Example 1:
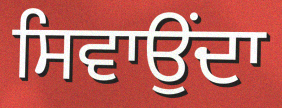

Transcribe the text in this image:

ਸਿਵਾਉਂਦਾ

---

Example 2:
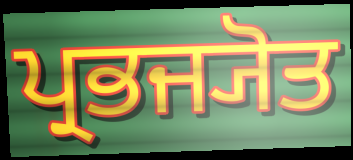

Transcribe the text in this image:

ਪ੍ਰਭਜ੍ਯੋਤ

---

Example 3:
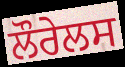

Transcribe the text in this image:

ਲੌਰੇਲਸ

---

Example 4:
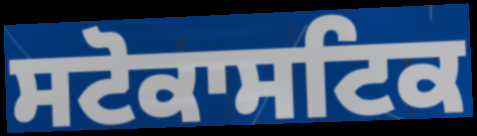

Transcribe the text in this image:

ਸਟੋਕਾਸਟਿਕ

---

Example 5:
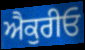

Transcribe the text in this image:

ਐਕੁਰੀਓ